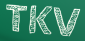
TKV